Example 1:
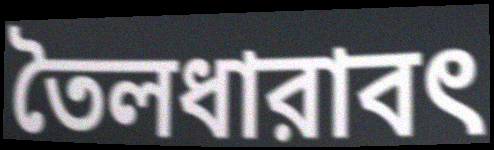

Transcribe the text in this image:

তৈলধারাবৎ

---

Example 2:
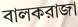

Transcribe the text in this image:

বালকরাজা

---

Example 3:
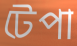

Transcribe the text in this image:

টেপা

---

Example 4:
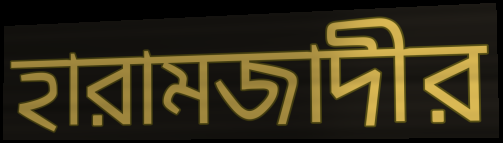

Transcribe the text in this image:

হারামজাদীর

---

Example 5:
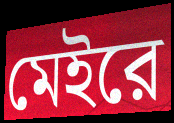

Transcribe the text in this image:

মেইরে